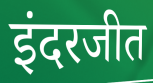
इंदरजीत